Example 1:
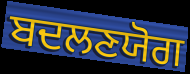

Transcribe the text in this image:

ਬਦਲਣਯੋਗ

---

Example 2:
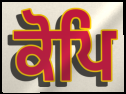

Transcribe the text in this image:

ਕੋਪਿ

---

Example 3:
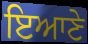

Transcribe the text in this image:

ਇਆਣੇ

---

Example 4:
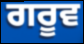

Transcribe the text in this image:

ਗਰੂਵ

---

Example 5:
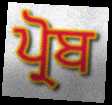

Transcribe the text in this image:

ਪ੍ਰੋਬ